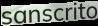
sanscrito